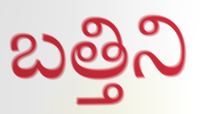
బత్తిని